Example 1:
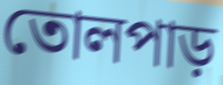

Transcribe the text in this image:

তোলপাড়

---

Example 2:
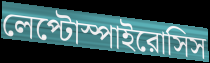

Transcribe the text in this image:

লেপ্টোস্পাইরোসিস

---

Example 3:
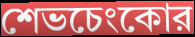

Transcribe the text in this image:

শেভচেংকোর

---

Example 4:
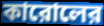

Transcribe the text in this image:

কারোলের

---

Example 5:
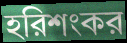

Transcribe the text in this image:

হরিশংকর